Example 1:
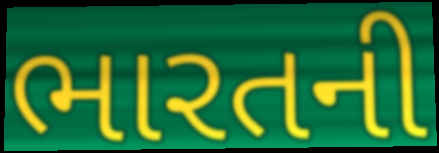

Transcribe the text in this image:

ભારતની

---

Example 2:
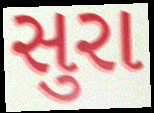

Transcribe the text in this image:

સુરા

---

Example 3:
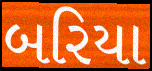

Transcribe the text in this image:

બરિયા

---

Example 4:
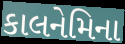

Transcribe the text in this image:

કાલનેમિના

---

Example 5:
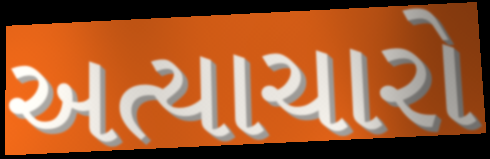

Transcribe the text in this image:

અત્યાચારો